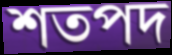
শতপদ